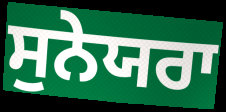
ਸੁਨੇਯਰਾ